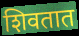
शिवतात